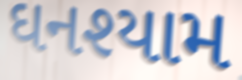
ઘનશ્યામ